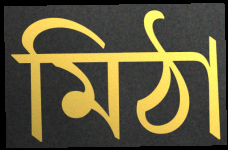
মিঠা